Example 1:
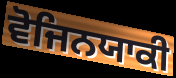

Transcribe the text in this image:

ਵੋਜਿਨਯਾਕੀ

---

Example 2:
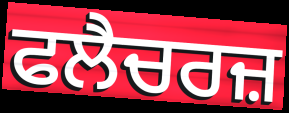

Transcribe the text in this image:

ਫਲੈਚਰਜ਼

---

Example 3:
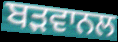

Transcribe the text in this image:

ਬੜਵਾਨਲ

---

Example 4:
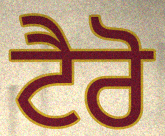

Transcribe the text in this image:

ਟੈਰੋ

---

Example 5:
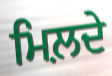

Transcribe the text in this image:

ਮਿਲ਼ਦੇ